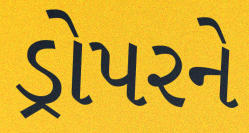
ડ્રોપરને